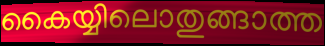
കൈയ്യിലൊതുങ്ങാത്ത